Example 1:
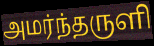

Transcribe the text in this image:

அமர்ந்தருளி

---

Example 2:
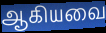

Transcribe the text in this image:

ஆகியவை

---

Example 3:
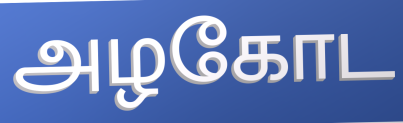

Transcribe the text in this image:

அழகோட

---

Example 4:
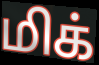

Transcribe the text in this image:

மிக்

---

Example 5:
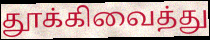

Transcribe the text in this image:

தூக்கிவைத்து